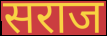
सराज